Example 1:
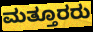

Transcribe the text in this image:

ಮತ್ತೂರರು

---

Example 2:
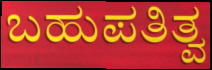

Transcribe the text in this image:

ಬಹುಪತಿತ್ವ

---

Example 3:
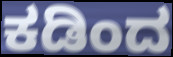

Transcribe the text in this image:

ಕಡಿಂದ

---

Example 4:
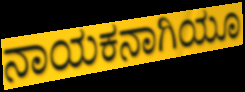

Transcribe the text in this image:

ನಾಯಕನಾಗಿಯೂ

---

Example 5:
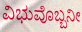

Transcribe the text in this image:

ವಿಭುವೊಬ್ಬನೀ